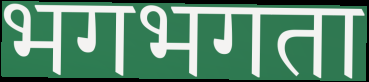
भगभगता